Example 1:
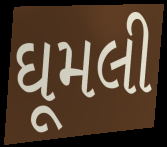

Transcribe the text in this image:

ઘૂમલી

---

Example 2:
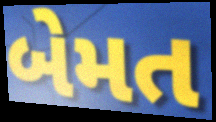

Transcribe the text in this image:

બેમત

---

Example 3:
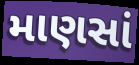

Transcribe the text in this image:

માણસાં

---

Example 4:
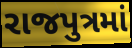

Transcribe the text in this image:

રાજપુત્રમાં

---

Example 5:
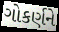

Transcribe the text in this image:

ગોકર્ણને